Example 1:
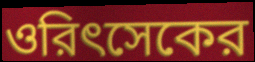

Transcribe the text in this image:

ওরিৎসেকের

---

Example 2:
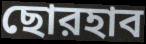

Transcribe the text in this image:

ছোরহাব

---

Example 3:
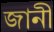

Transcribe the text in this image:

জানী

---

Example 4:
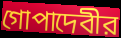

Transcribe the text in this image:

গোপাদেবীর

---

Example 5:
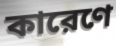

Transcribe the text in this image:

কারেণে